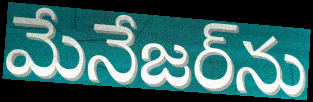
మేనేజర్‌ను